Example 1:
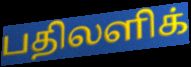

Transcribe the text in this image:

பதிலளிக்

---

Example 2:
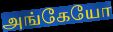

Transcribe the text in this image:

அங்கேயோ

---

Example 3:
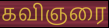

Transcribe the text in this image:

கவிஞரை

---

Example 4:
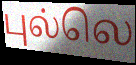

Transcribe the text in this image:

புல்லெ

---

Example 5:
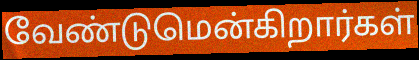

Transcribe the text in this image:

வேண்டுமென்கிறார்கள்